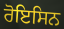
ਰੋਇਸਿਨ